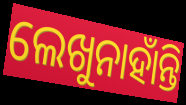
ଲେଖୁନାହାଁନ୍ତି